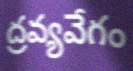
ద్రవ్యవేగం